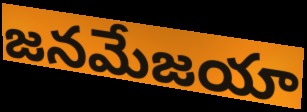
జనమేజయా